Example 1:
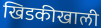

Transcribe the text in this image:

खिडकीखाली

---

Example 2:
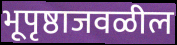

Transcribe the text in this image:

भूपृष्ठाजवळील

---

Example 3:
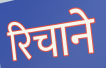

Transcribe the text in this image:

रिचाने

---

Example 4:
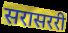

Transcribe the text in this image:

सरासररी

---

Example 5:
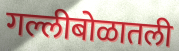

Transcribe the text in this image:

गल्लीबोळातली